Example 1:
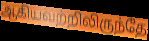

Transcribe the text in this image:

ஆகியவற்றிலிருந்தே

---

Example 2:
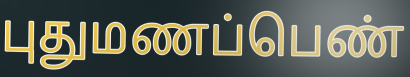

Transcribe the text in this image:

புதுமணப்பெண்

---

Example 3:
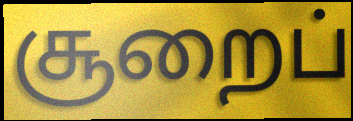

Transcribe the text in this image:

சூறைப்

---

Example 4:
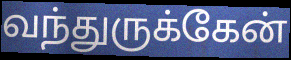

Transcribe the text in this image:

வந்துருக்கேன்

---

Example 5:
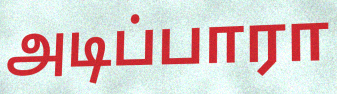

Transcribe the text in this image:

அடிப்பாரா